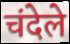
चंदेले